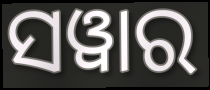
ସୱାର